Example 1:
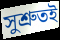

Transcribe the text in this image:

সুশ্ৰুতই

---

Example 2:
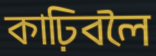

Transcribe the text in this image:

কাঢ়িবলৈ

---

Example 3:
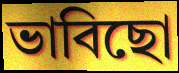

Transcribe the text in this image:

ভাবিছো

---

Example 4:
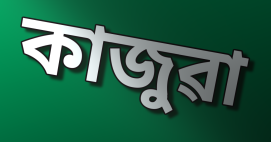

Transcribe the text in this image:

কাজুৱা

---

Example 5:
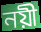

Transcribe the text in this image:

নয়ী